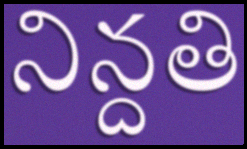
నిన్దతి